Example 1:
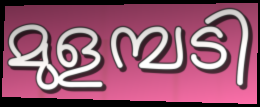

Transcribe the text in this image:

മുളമ്പടി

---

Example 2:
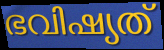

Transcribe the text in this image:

ഭവിഷ്യത്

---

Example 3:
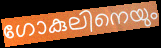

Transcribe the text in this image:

ഗോകുലിനെയും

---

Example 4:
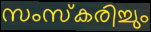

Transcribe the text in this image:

സംസ്കരിച്ചും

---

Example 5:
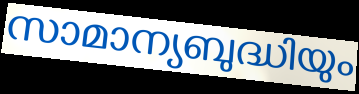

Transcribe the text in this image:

സാമാന്യബുദ്ധിയും